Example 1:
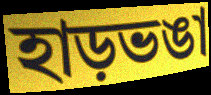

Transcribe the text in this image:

হাড়ভঙা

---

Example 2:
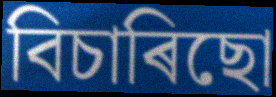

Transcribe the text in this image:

বিচাৰিছো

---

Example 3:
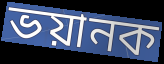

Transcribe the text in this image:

ভয়ানক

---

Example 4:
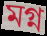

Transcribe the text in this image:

মগ্ন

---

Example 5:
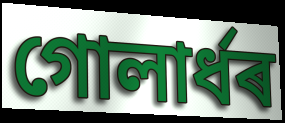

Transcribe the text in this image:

গোলাৰ্ধৰ